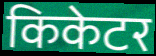
किकेटर